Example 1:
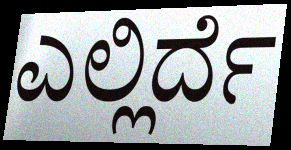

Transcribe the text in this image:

ಎಲ್ಲಿರ್ದೆ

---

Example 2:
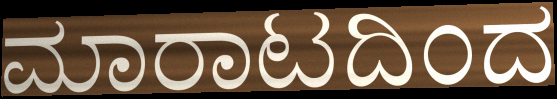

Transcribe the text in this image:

ಮಾರಾಟದಿಂದ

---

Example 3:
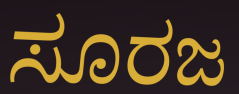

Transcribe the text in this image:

ಸೂರಜ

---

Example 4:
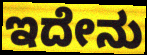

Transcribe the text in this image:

ಇದೇನು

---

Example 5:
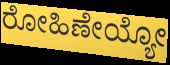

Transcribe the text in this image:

ರೋಹಿಣೇಯ್ಯೋ